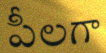
పీలగా